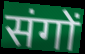
संगों